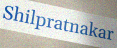
Shilpratnakar